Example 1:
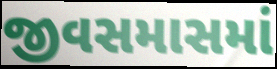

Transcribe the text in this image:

જીવસમાસમાં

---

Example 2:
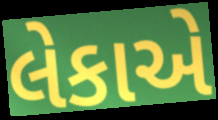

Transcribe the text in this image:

લેકાએ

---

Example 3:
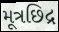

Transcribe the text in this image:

મૂત્રછિદ્ર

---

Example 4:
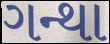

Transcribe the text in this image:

ગન્થા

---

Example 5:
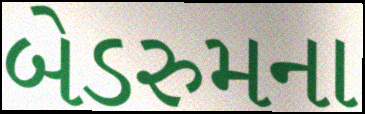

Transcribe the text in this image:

બેડરુમના